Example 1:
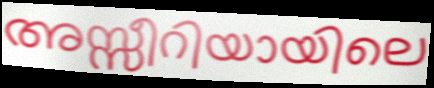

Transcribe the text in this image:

അസ്സീറിയായിലെ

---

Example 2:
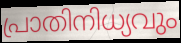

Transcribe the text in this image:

പ്രാതിനിധ്യവും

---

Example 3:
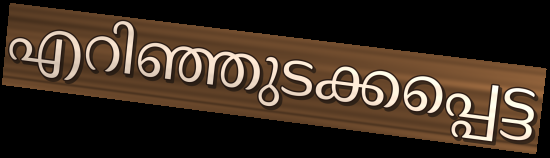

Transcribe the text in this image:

എറിഞ്ഞുടക്കപ്പെട്ട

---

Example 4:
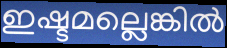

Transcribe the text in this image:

ഇഷ്ടമല്ലെങ്കിൽ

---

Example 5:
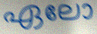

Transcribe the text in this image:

ഏലോ